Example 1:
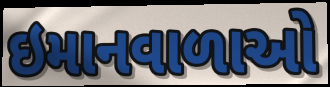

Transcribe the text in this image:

ઇમાનવાળાઓ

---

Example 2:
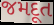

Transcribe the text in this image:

જમદૂત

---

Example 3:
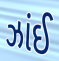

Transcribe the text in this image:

ઝાંઈ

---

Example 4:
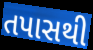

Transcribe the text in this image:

તપાસથી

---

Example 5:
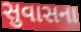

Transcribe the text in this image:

સુવાસના